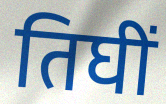
तिघीं